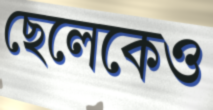
ছেলেকেও